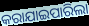
କରାଯାଇପାରିଲା